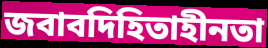
জবাবদিহিতাহীনতা